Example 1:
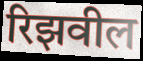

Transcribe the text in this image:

रिझवील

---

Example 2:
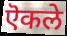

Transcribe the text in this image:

ऎकले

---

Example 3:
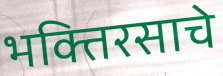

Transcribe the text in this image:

भक्तिरसाचे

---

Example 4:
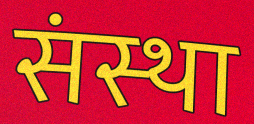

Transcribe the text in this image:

संस्था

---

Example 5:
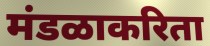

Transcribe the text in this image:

मंडळाकरिता